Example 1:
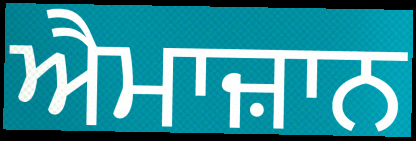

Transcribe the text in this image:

ਐਮਾਜ਼ਾਨ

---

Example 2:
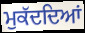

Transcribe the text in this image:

ਮੁਕੱਦਦਿਆਂ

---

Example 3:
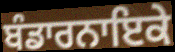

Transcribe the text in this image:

ਬੰਡਾਰਨਾਇਕੇ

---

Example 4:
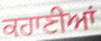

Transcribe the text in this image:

ਕਹਾਣੀਆਂ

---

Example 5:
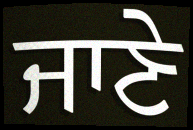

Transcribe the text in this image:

ਜਾਣੇ